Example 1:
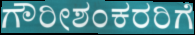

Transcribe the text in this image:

ಗೌರೀಶಂಕರರಿಗೆ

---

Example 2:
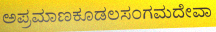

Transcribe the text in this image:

ಅಪ್ರಮಾಣಕೂಡಲಸಂಗಮದೇವಾ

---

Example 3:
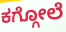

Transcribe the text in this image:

ಕಗ್ಗೋಲೆ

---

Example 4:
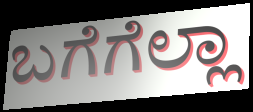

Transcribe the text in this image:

ಬಗೆಗೆಲ್ಲಾ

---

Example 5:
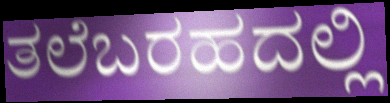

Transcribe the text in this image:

ತಲೆಬರಹದಲ್ಲಿ